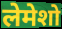
लेमेशो